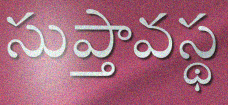
సుప్తావస్థ